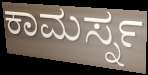
ಕಾಮರ್ಸ್ನ